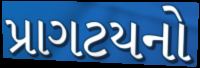
પ્રાગટયનો